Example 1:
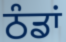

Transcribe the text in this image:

ਠੰਡਾਂ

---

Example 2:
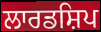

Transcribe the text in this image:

ਲਾਰਡਸ਼ਿਪ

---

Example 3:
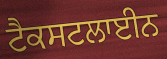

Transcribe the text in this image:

ਟੈਕਸਟਲਾਈਨ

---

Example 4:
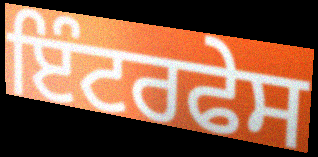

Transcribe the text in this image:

ਇੰਟਰਫੇਸ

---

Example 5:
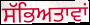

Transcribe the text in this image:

ਸੱਭਿਅਤਾਵਾਂ